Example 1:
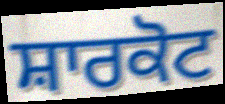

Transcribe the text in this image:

ਸ਼ਾਰਕੋਟ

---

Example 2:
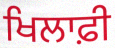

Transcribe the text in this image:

ਖਿਲਾਫ਼ੀ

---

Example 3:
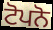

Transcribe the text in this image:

ਟੋਪਨੋ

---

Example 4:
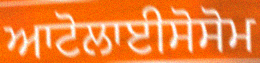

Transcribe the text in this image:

ਆਟੋਲਾਈਸੋਸੋਮ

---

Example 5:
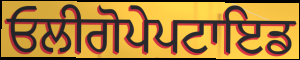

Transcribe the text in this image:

ਓਲੀਗੋਪੇਪਟਾਇਡ